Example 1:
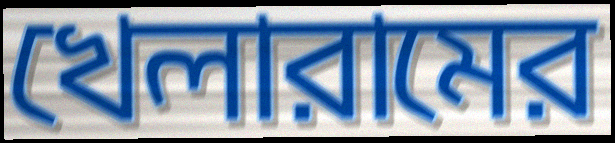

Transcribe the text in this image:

খেলারামের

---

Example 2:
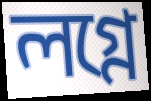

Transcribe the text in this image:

লগ্নে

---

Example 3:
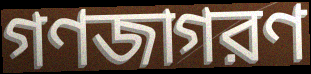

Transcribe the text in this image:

গণজাগরণ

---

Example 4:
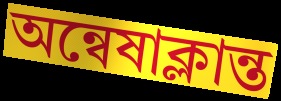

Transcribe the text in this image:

অন্বেষাক্লান্ত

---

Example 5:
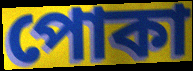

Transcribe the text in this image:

পোকা